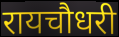
रायचौधरी